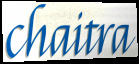
chaitra